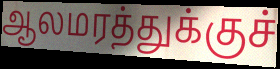
ஆலமரத்துக்குச்